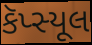
કૅપ્સ્યૂલ